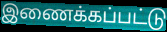
இணைக்கப்பட்டு